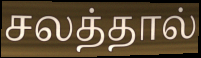
சலத்தால்